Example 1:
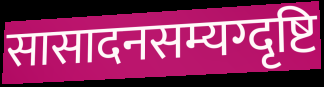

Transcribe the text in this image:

सासादनसम्यग्दृष्टि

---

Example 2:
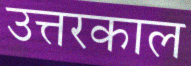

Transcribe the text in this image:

उत्तरकाल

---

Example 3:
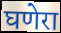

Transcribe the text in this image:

घणेरा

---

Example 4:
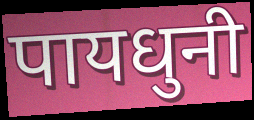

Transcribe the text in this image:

पायधुनी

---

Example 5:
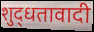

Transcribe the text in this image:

शुद्धतावादी